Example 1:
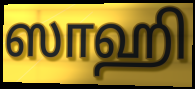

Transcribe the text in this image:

ஸாஹி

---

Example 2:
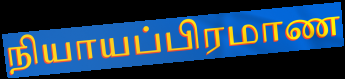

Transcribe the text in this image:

நியாயப்பிரமாண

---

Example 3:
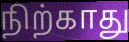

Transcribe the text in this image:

நிற்காது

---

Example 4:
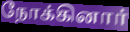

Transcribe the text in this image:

நோக்கினார்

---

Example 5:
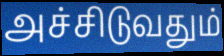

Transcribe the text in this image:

அச்சிடுவதும்